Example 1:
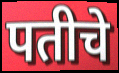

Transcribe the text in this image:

पतीचे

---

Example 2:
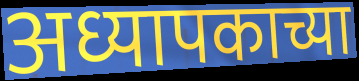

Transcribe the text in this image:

अध्यापकाच्या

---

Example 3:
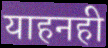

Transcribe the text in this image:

याहनही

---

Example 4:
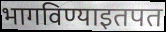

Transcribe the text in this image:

भागविण्याइतपत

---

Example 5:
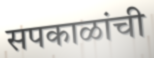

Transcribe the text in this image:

सपकाळांची